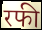
रफी